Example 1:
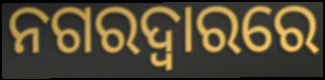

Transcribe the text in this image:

ନଗରଦ୍ୱାରରେ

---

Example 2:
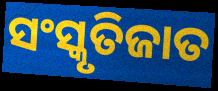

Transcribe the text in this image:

ସଂସ୍କୃତିଜାତ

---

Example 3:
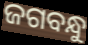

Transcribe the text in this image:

ଜଗବନ୍ଧୁ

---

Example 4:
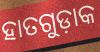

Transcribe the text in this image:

ହାତଗୁଡ଼ାକ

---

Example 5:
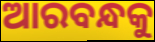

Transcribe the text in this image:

ଆରବନ୍ଧକୁ